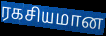
ரகசியமான